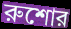
রুশোর